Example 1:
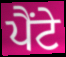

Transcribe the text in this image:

ਪੈਂਟੇ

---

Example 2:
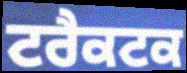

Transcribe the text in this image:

ਟਰੈਕਟਕ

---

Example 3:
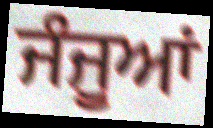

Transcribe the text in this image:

ਜੰਜੂਆਂ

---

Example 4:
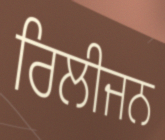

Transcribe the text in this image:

ਰਿਲੀਜਨ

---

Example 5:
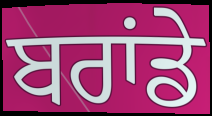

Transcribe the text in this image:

ਬਰਾਂਡੇ